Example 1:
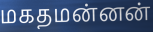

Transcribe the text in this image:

மகதமன்னன்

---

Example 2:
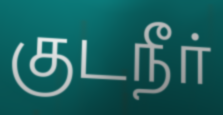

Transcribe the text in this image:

குடநீர்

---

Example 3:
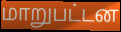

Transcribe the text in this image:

மாறுபட்டன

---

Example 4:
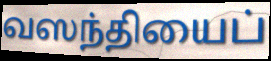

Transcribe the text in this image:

வஸந்தியைப்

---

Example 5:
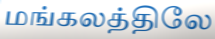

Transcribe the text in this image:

மங்கலத்திலே